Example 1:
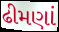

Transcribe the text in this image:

ઢીમણાં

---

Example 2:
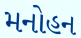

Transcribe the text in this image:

મનોહન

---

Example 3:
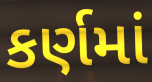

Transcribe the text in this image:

કર્ણમાં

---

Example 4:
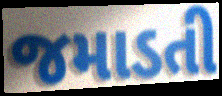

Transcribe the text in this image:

જમાડતી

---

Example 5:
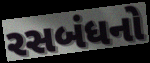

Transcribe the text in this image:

રસબંધનો